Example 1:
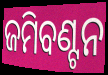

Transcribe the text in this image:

ଜମିବଣ୍ଟନ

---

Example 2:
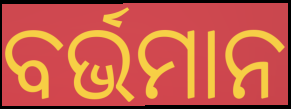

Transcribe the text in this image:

ବର୍ଭମାନ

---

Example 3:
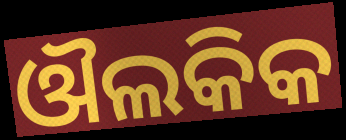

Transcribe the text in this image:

ଔଲକିକ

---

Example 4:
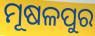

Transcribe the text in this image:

ମୂଷଳପୁର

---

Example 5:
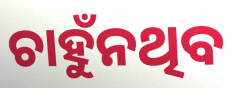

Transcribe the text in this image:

ଚାହୁଁନଥିବ